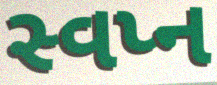
સ્વપ્ન